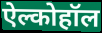
ऐल्कोहॉल